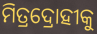
ମିତ୍ରଦ୍ରୋହୀକୁ